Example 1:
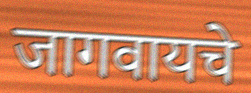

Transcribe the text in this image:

जागवायचे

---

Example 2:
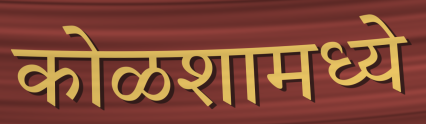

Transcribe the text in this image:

कोळशामध्ये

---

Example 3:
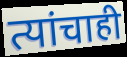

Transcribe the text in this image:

त्यांचाही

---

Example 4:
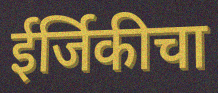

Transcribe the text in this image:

ईर्जिकीचा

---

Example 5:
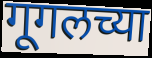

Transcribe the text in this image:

गूगलच्या